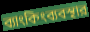
ব্যাংকিংব্যবস্থার